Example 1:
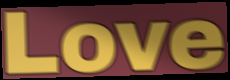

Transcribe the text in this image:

Love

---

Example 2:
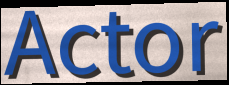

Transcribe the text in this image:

Actor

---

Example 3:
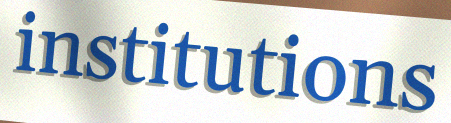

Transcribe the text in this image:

institutions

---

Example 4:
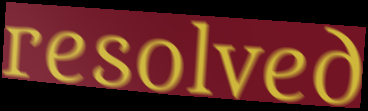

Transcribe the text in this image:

resolved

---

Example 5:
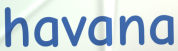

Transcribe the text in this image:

havana